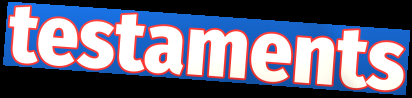
testaments